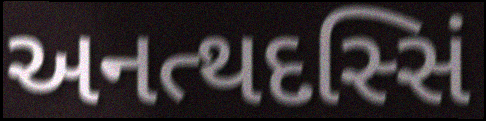
અનત્થદસ્સિં